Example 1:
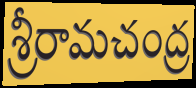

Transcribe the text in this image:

శ్రీరామచంద్ర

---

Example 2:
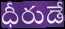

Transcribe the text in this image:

ధీరుడే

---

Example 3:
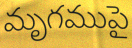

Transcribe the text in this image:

మృగముపై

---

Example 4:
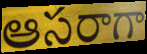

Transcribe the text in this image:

ఆసరాగా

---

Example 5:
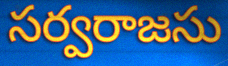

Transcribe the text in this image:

సర్వరాజసు